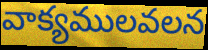
వాక్యములవలన